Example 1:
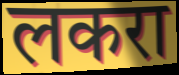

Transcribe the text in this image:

लकरा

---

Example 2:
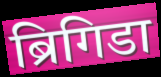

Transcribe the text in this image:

ब्रिगिडा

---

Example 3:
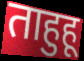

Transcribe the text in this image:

ताहुहू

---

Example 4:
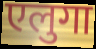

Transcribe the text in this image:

एलुगा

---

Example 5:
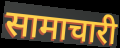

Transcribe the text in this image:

सामाचारी